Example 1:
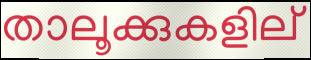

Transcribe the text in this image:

താലൂക്കുകളില്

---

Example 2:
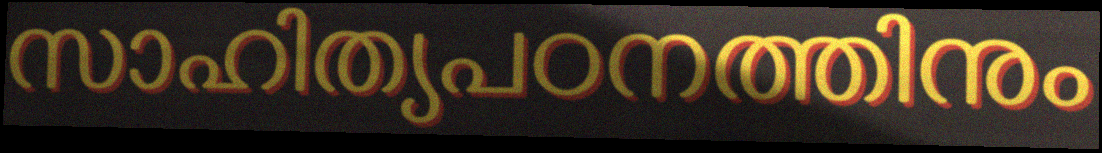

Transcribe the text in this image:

സാഹിത്യപഠനത്തിനും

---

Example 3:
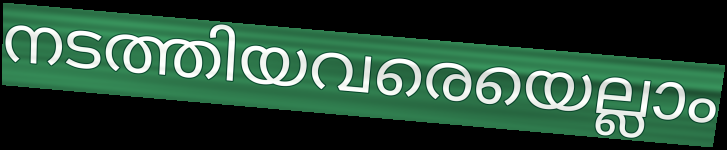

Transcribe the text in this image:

നടത്തിയവരെയെല്ലാം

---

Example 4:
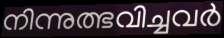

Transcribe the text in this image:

നിന്നുത്ഭവിച്ചവർ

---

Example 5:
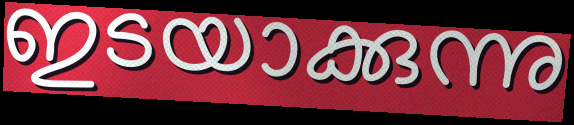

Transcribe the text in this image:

ഇടയാക്കുന്നു